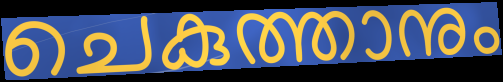
ചെകുത്താനും